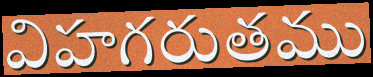
విహగరుతము